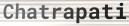
Chatrapati